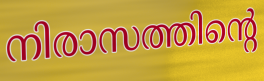
നിരാസത്തിന്റെ